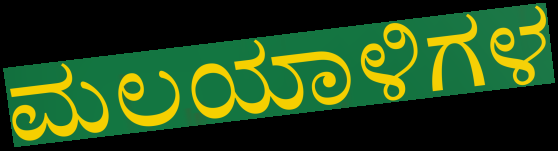
ಮಲಯಾಳಿಗಳ